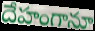
దేహంగానూ